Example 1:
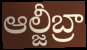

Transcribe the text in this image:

ఆల్జీబ్రా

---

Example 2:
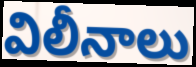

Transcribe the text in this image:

విలీనాలు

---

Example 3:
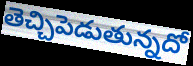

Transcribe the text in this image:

తెచ్చిపెడుతున్నదో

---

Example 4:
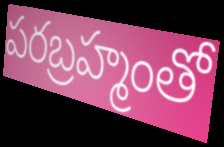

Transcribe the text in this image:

పరబ్రహ్మంతో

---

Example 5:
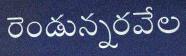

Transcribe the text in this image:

రెండున్నరవేల